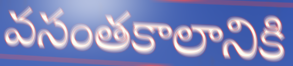
వసంతకాలానికి